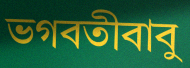
ভগবতীবাবু